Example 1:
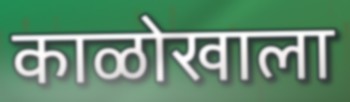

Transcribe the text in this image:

काळोखाला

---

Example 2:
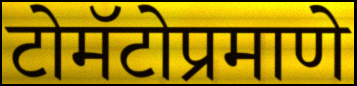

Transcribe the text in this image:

टोमॅटोप्रमाणे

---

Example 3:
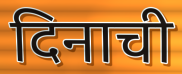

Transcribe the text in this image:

दिनाची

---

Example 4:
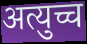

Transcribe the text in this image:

अत्युच्च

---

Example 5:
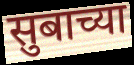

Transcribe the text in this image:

सुबाच्या